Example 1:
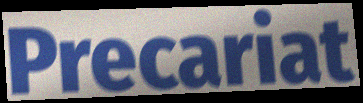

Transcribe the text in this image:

Precariat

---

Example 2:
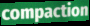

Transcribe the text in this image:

compaction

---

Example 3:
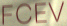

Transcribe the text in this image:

FCEV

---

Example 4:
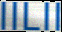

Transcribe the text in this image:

IILII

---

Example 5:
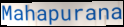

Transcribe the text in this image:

Mahapurana